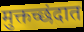
मुक्तच्छंदात